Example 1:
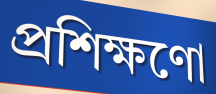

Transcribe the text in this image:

প্ৰশিক্ষণো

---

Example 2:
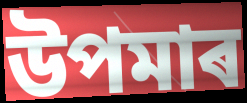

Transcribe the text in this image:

উপমাৰ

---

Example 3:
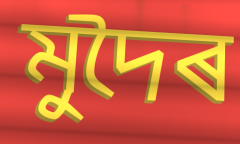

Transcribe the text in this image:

মুদৈৰ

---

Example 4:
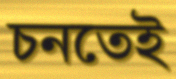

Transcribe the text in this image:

চনতেই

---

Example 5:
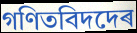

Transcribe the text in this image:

গণিতবিদদেৰ